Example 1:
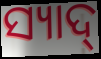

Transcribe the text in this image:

ସ୍ୟାଦ୍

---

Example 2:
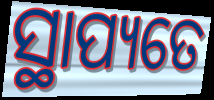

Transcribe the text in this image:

ସ୍ଥାପ୍ୟତେ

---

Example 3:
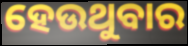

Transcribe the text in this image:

ହେଉଥୁବାର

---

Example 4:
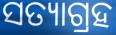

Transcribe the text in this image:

ସତ୍ୟାଗ୍ରହ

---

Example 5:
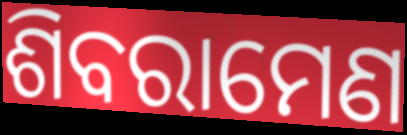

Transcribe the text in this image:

ଶିବରାମେଣ